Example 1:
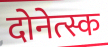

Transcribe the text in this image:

दोनेत्स्क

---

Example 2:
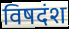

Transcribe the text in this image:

विषदंश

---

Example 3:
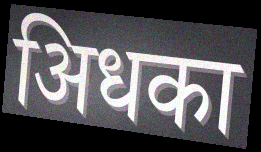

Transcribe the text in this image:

अिधका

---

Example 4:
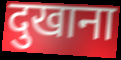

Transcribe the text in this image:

दुखाना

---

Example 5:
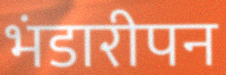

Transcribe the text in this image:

भंडारीपन